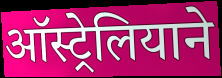
ऑस्ट्रेलियाने